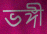
ভঙ্গী